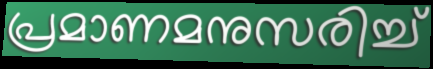
പ്രമാണമനുസരിച്ച്